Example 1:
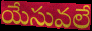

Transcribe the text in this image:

యేసువలే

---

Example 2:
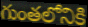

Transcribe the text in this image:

గుంతలోనికి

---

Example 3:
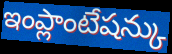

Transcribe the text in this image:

ఇంప్లాంటేషన్కు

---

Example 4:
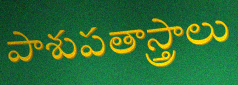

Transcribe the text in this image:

పాశుపతాస్త్రాలు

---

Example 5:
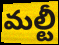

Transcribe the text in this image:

మల్టీ